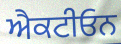
ਐਕਟੀਓਨ